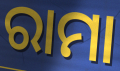
ରାମା